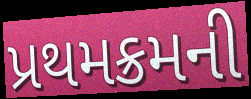
પ્રથમક્રમની